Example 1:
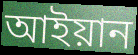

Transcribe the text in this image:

আইয়ান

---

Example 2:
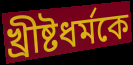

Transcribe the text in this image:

খ্রীষ্টধর্মকে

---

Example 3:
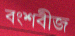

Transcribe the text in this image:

বংশবীজ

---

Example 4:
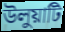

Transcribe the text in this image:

উলুয়াটি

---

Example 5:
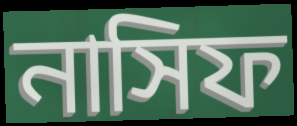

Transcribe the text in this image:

নাসিফ